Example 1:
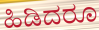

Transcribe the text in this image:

ಹಿಡಿದರೂ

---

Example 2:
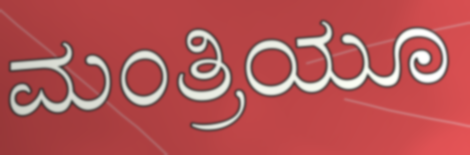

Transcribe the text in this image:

ಮಂತ್ರಿಯೂ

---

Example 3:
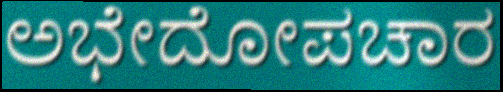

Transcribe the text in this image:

ಅಭೇದೋಪಚಾರ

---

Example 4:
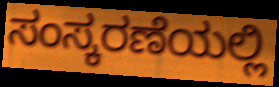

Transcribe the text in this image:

ಸಂಸ್ಕರಣೆಯಲ್ಲಿ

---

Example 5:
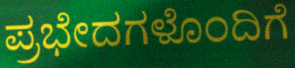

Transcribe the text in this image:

ಪ್ರಭೇದಗಳೊಂದಿಗೆ